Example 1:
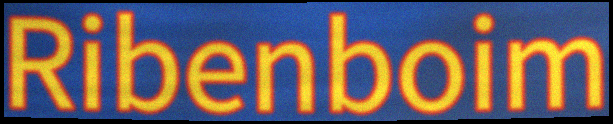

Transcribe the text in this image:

Ribenboim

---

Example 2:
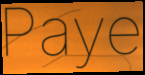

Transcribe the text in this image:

Paye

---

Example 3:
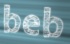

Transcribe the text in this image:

beb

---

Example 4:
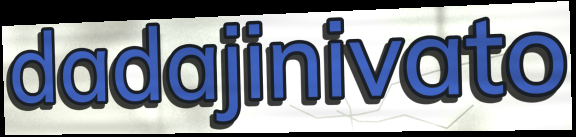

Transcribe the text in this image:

dadajinivato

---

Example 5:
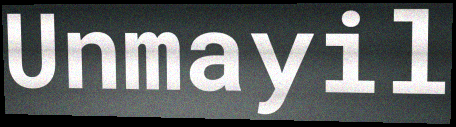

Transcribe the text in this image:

Unmayil